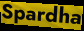
Spardha